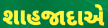
શાહજાદાએ